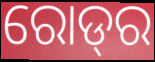
ରୋଡ୍‌ର